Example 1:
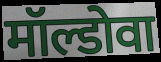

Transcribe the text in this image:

मॉल्डोवा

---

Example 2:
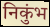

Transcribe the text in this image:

निकुंभ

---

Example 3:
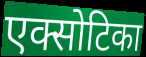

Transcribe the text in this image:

एक्सोटिका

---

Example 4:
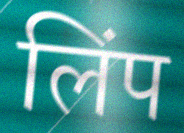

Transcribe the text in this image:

लिंप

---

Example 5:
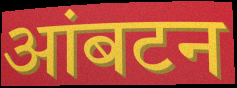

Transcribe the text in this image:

आंबटन